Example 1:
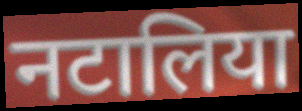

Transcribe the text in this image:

नटालिया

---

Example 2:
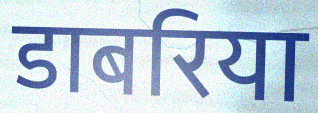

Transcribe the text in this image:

डाबरिया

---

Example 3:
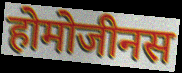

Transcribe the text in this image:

होमोजीनस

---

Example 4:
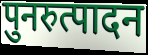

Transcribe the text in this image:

पुनरुत्पादन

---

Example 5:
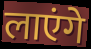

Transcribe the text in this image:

लाएंगे